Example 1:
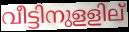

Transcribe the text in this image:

വീട്ടിനുളളില്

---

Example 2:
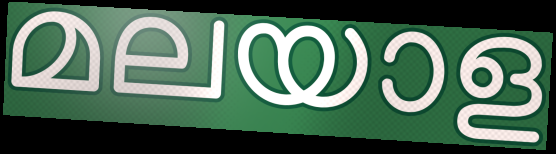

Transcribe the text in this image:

മലയാള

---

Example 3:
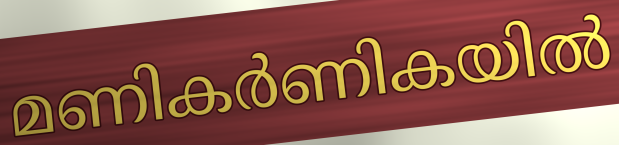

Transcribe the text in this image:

മണികർണികയിൽ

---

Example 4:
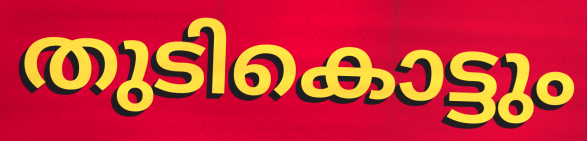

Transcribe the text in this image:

തുടികൊട്ടും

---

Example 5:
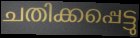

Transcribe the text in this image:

ചതിക്കപ്പെട്ടു